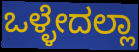
ಒಳ್ಳೇದಲ್ಲಾ